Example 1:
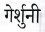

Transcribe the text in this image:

गेर्शुनी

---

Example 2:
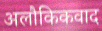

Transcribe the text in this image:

अलौकिकवाद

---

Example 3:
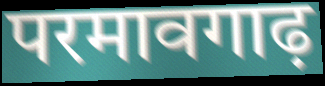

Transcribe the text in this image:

परमावगाढ़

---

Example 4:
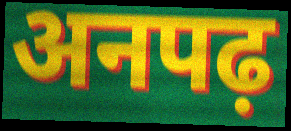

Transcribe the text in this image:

अनपढ़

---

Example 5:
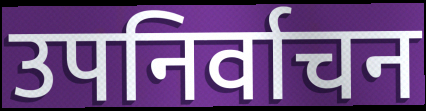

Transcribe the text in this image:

उपनिर्वाचन